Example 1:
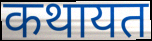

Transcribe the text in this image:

कथायत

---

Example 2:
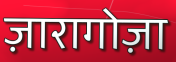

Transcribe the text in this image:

ज़ारागोज़ा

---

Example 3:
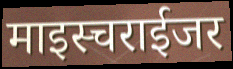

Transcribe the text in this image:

माइस्चराईजर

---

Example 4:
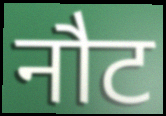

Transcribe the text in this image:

नौट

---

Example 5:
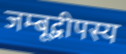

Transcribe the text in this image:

जम्बूद्वीपस्य